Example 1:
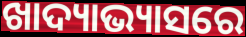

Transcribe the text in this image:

ଖାଦ୍ୟାଭ୍ୟାସରେ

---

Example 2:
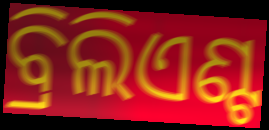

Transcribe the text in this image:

ବ୍ରିଲିଏଣ୍ଟ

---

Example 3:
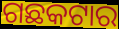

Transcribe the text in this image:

ଗଛକଟାର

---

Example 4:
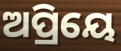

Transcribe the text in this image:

ଅପ୍ରିୟେ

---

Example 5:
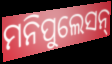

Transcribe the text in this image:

ମନିପୁଲେସନ୍